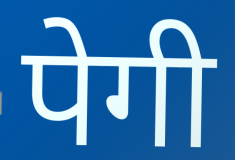
पेगी